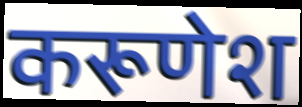
करूणेश